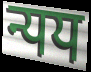
न्यय